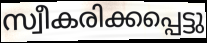
സ്വീകരിക്കപ്പെട്ടു